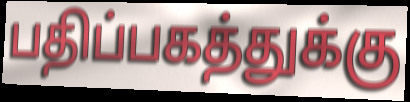
பதிப்பகத்துக்கு